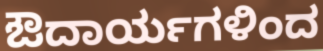
ಔದಾರ್ಯಗಳಿಂದ